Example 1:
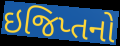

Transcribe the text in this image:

ઇજિપ્તનો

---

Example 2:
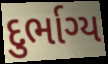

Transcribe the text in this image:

દુર્ભાગ્ય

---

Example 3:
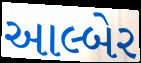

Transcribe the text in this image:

આલ્બેર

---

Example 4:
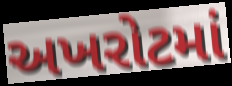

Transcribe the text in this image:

અખરોટમાં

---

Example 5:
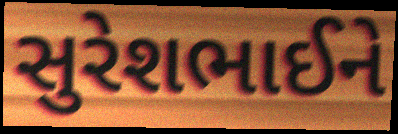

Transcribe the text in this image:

સુરેશભાઈને